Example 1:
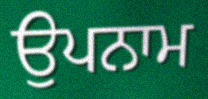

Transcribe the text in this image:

ਉਪਨਾਮ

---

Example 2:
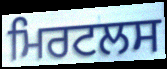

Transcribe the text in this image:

ਮਿਰਟਲਸ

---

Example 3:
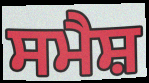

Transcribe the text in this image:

ਸਮੈਸ਼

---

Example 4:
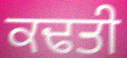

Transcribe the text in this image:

ਕਢਤੀ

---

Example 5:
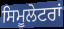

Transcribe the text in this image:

ਸਿਮੂਲੇਟਰਾਂ